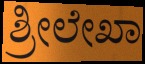
ಶ್ರೀಲೇಖಾ